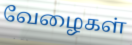
வேழைகள்